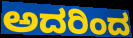
ಅದರಿಂದ